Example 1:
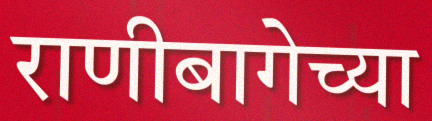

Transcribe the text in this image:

राणीबागेच्या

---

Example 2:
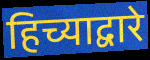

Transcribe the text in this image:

हिच्याद्वारे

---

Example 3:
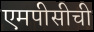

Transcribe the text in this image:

एमपीसीची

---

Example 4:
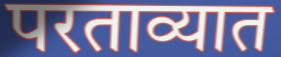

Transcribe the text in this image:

परताव्यात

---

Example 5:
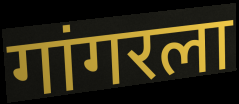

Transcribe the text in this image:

गांगरला